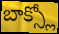
బాక్స్లో